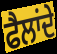
ਫੈਲਾਂਦੇ